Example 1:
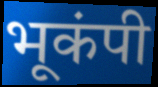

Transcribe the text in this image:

भूकंपी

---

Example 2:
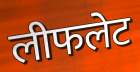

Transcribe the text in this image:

लीफलेट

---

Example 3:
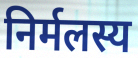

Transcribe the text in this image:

निर्मलस्य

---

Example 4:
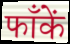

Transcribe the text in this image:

फाँकें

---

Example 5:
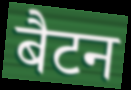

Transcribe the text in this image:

बैटन